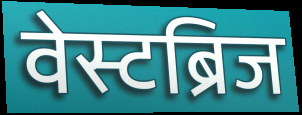
वेस्टब्रिज